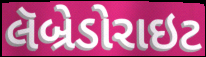
લૅબ્રેડોરાઇટ